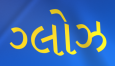
ગ્લોઝ